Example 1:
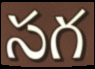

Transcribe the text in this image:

సగ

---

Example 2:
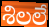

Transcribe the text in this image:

శిలలే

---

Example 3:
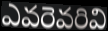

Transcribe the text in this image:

ఎవరెవరివి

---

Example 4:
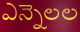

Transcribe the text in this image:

ఎన్నెలల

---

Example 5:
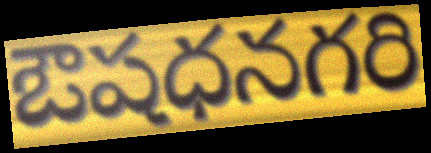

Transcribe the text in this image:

ఔషధనగరి